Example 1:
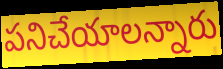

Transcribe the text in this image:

పనిచేయాలన్నారు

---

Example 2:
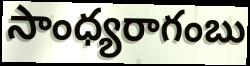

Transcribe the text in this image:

సాంధ్యరాగంబు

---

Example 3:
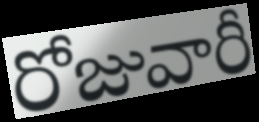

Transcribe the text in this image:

రోజువారీ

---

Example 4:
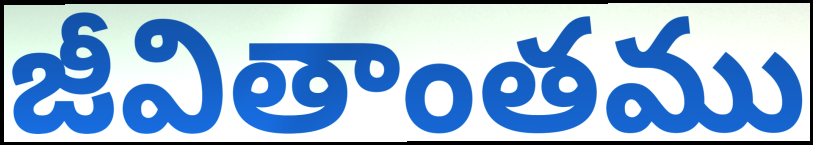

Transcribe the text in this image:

జీవితాంతము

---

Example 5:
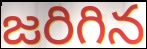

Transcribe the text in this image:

జరిగిన